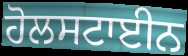
ਹੋਲਸਟਾਈਨ